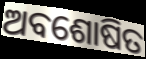
ଅବଶୋଷିତ